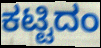
ಕಟ್ಟಿದಂ